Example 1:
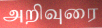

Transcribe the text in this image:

அறிவுரை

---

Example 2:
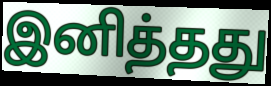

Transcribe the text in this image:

இனித்தது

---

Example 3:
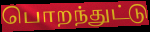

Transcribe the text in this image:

பொறந்துட்டு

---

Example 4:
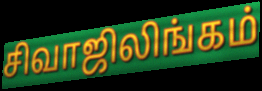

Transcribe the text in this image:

சிவாஜிலிங்கம்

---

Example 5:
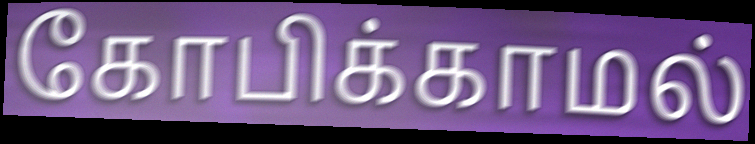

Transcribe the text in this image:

கோபிக்காமல்